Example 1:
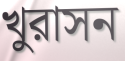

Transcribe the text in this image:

খুরাসন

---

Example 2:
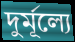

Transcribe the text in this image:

দুর্মূল্যে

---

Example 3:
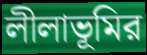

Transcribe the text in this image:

লীলাভূমির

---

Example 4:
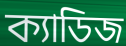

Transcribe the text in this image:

ক্যাডিজ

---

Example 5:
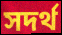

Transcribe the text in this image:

সদর্থ